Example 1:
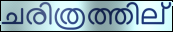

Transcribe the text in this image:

ചരിത്രത്തില്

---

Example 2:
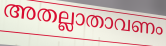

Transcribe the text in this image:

അതല്ലാതാവണം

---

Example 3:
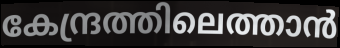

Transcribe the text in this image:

കേന്ദ്രത്തിലെത്താൻ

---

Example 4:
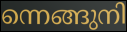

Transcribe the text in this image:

ന്നെങ്ങുനി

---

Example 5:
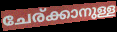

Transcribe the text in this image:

ചേര്ക്കാനുള്ള